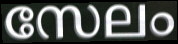
സേലം